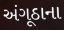
અંગૂઠાના